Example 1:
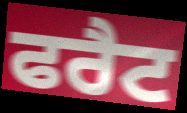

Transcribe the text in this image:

ਫਰੈਟ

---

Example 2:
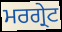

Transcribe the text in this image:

ਮਰਗ੍ਰੇਟ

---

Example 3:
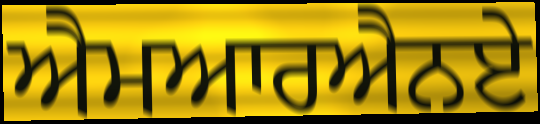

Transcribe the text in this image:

ਐਮਆਰਐਨਏ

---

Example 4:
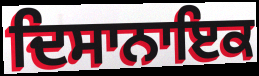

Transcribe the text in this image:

ਦਿਸਾਨਾਇਕ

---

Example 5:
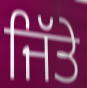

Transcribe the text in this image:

ਜਿੱਤੇ